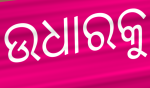
ଉଧାରକୁ